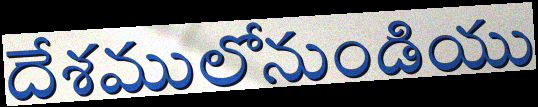
దేశములోనుండియు